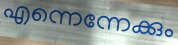
എന്നെന്നേക്കും